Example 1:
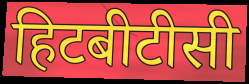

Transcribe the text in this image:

हिटबीटीसी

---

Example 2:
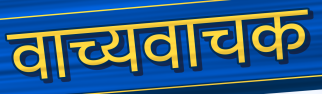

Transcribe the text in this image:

वाच्यवाचक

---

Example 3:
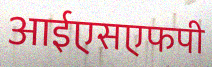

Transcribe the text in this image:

आईएसएफपी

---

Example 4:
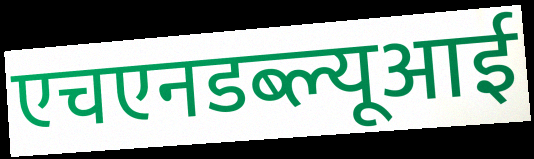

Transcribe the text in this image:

एचएनडब्ल्यूआई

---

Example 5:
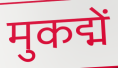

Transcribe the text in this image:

मुकद्में